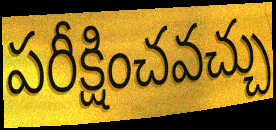
పరీక్షించవచ్చు